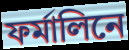
ফর্মালিনে